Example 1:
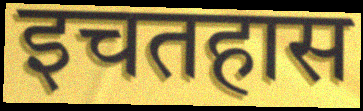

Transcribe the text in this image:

इचतहास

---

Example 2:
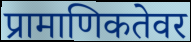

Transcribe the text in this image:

प्रामाणिकतेवर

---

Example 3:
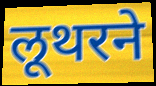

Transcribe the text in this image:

लूथरने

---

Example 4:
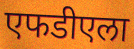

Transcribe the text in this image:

एफडीएला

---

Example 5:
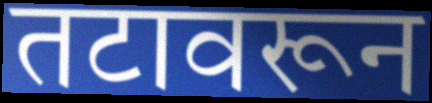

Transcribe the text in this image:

तटावरून